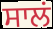
ਸਾਲਂ